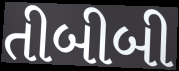
તીબીબી